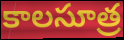
కాలసూత్ర